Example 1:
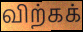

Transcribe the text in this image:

விற்கக்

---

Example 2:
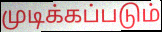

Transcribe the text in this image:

முடிக்கப்படும்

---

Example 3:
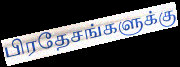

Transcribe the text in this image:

பிரதேசங்களுக்கு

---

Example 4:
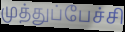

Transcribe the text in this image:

முத்துப்பேச்சி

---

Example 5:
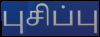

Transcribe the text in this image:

புசிப்பு